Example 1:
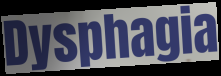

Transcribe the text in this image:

Dysphagia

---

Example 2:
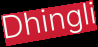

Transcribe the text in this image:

Dhingli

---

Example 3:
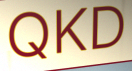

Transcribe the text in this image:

QKD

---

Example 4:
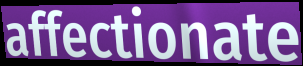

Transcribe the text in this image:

affectionate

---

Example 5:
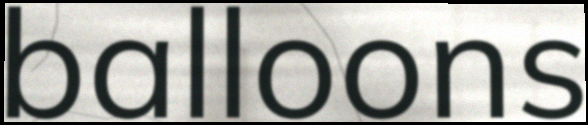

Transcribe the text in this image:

balloons